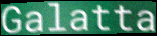
Galatta